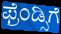
ಫ್ರೆಂಡ್ಸಿಗೆ